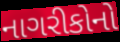
નાગરીકોનો